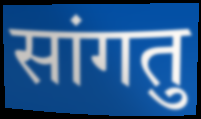
सांगतु